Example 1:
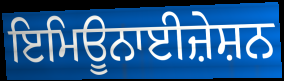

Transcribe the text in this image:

ਇਮਿਊਨਾਈਜ਼ੇਸ਼ਨ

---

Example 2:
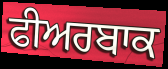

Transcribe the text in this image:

ਫੀਅਰਬਾਕ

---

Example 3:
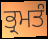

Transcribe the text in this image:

ਭ੍ਰਮਤੰ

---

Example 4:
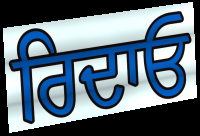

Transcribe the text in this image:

ਰਿਦਾਓ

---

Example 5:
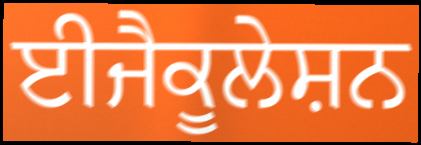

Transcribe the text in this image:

ਈਜੈਕੂਲੇਸ਼ਨ